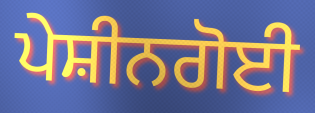
ਪੇਸ਼ੀਨਗੋਈ